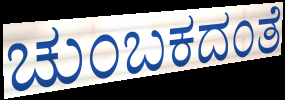
ಚುಂಬಕದಂತೆ